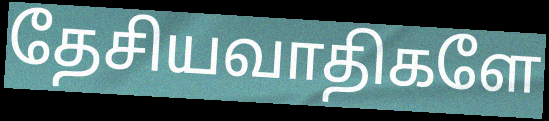
தேசியவாதிகளே